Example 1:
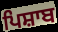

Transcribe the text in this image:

ਪਿਸ਼ਾਬ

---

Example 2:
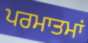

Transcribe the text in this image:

ਪਰਮਾਤਮਾਂ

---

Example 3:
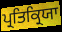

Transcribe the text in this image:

ਪ੍ਰਤਿਕ੍ਰਿਯਾ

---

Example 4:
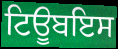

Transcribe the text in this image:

ਟਿਊਬਇਸ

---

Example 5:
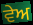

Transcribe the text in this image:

ਵੇਅ